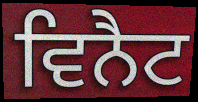
ਵਿਨੈਟ